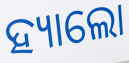
ହ୍ୟାଲୋ